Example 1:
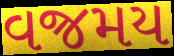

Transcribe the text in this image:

વજ્રમય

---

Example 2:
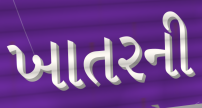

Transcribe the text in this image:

ખાતરની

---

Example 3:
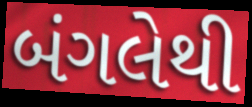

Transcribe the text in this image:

બંગલેથી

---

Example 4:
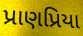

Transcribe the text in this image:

પ્રાણપ્રિયા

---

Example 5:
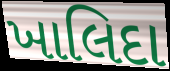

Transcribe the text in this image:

ખાલિદા